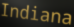
Indiana